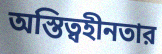
অস্তিত্বহীনতার